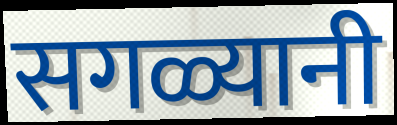
सगळ्यानी